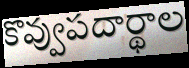
కొవ్వుపదార్థాల